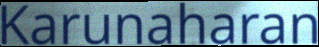
Karunaharan